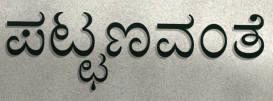
ಪಟ್ಟಣವಂತೆ